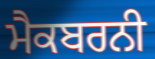
ਮੈਕਬਰਨੀ